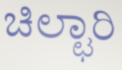
ಚಿಲ್ಟಾರಿ